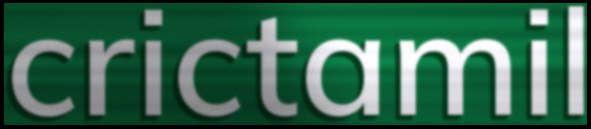
crictamil